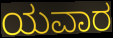
ಯವಾರ